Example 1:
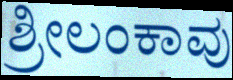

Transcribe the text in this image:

ಶ್ರೀಲಂಕಾವು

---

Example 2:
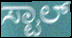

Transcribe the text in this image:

ಸ್ಟಾಲ್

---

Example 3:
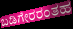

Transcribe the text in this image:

ಬಡಿಗೇರರಂತಹ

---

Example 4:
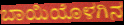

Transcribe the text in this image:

ಬಾಯಿಯೊಳಗಿನ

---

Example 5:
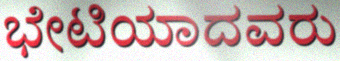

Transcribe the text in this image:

ಭೇಟಿಯಾದವರು